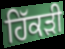
ਹਿੱਕੜੀ